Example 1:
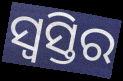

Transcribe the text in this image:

ସ୍ୱସ୍ତିର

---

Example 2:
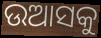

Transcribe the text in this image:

ଉଆସକୁ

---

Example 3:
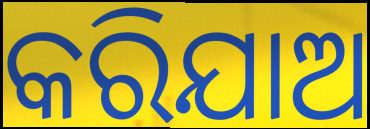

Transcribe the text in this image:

କରିଯାଅ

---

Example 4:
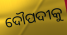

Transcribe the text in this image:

ଦୌପଦୀକୁ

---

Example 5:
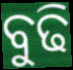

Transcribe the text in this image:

ବୁଢି